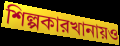
শিল্পকারখানায়ও